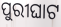
ପୁରୀଘାଟ